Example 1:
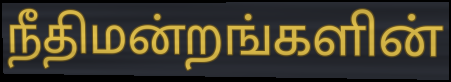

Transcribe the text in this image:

நீதிமன்றங்களின்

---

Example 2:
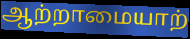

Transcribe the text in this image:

ஆற்றாமையாற்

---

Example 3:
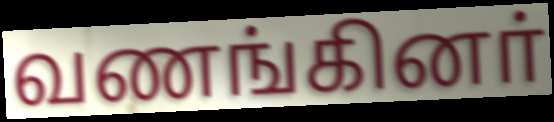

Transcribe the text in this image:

வணங்கினர்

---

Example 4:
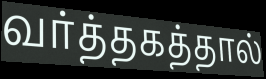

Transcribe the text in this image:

வர்த்தகத்தால்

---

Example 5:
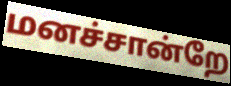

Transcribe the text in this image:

மனச்சான்றே